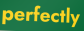
perfectly